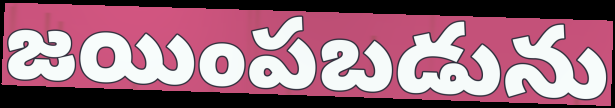
జయింపబడును